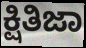
ಕ್ಷಿತಿಜಾ